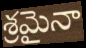
శ్రమైనా